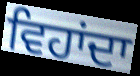
ਵਿਹਾਂਦਾ